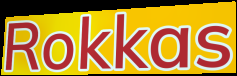
Rokkas